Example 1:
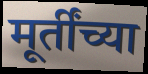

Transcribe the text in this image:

मूर्तींच्या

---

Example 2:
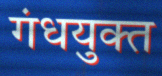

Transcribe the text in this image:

गंधयुक्‍त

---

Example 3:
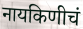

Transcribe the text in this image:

नायकिणीचं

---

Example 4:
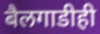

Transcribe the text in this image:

बैलगाडीही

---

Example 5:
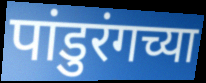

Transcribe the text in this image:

पांडुरंगच्या